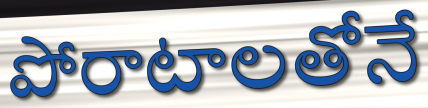
పోరాటాలతోనే